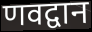
णवद्वान